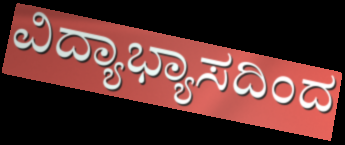
ವಿದ್ಯಾಭ್ಯಾಸದಿಂದ